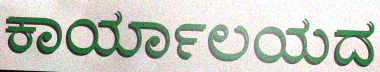
ಕಾರ್ಯಾಲಯದ